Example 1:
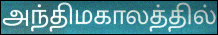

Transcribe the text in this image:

அந்திமகாலத்தில்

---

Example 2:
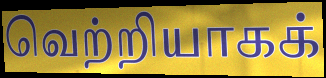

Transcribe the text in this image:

வெற்றியாகக்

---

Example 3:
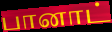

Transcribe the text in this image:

பானாட்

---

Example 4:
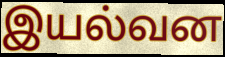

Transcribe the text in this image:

இயல்வன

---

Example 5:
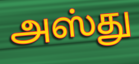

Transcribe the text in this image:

அஸ்து